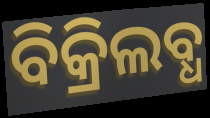
ବିକ୍ରିଲବ୍ଧ